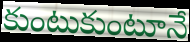
కుంటుకుంటూనే